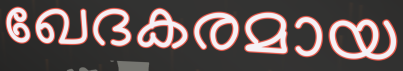
ഖേദകരമായ